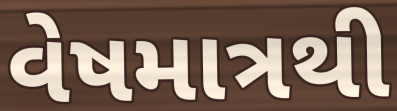
વેષમાત્રથી